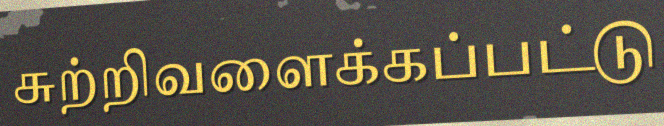
சுற்றிவளைக்கப்பட்டு